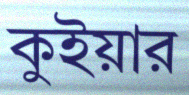
কুইয়ার